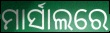
ମାର୍ସାଲରେ